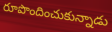
రూపొందించుకున్నాడు